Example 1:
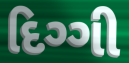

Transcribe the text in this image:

દિગ્ગી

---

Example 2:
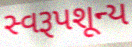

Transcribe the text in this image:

સ્વરૂપશૂન્ય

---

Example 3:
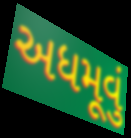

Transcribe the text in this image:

અધમૂવું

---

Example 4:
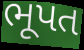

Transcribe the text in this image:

ભૂપત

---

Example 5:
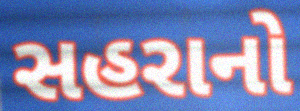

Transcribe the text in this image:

સહરાનો